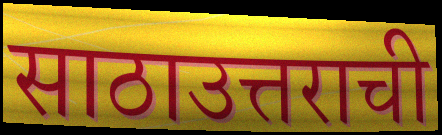
साठाउत्तराची